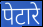
पेटारे